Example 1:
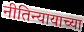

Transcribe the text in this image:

नीतिन्यायाच्या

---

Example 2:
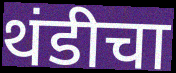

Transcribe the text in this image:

थंडीचा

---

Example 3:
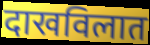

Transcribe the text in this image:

दाखविलात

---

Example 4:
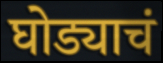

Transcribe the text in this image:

घोड्याचं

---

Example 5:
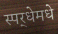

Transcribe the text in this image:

स्पर्धेमधे